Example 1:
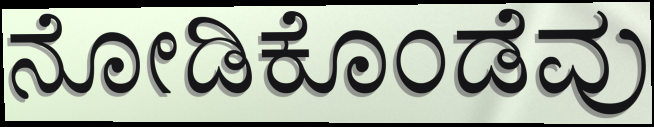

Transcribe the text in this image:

ನೋಡಿಕೊಂಡೆವು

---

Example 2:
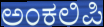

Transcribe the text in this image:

ಅಂಕಲಿಪಿ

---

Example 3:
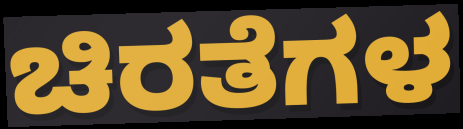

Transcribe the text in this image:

ಚಿರತೆಗಳ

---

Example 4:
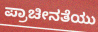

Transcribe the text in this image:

ಪ್ರಾಚೀನತೆಯು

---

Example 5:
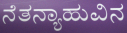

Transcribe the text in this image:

ನೆತನ್ಯಾಹುವಿನ